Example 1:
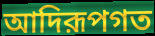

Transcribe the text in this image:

আদিরূপগত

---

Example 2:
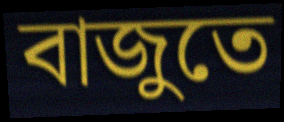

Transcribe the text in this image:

বাজুতে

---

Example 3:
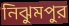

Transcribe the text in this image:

নিঝুমপুর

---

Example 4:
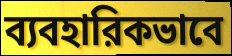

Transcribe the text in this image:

ব্যবহারিকভাবে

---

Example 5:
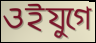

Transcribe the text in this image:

ওইযুগে